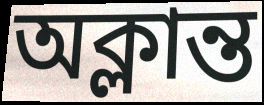
অক্লান্ত